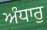
ਅੰਧਾਰੁ